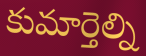
కుమార్తెల్ని